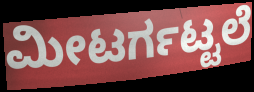
ಮೀಟರ್ಗಟ್ಟಲೆ